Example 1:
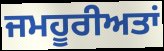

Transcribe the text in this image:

ਜਮਹੂਰੀਅਤਾਂ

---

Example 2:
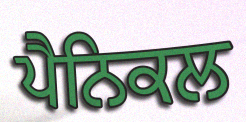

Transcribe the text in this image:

ਪੈਨਿਕਲ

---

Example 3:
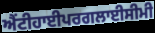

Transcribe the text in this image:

ਐਂਟੀਹਾਈਪਰਗਲਾਈਸੀਮੀ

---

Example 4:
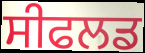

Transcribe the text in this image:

ਸੀਫਲਡ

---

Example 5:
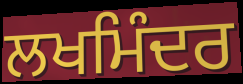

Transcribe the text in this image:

ਲਖਮਿੰਦਰ